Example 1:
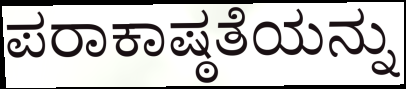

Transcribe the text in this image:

ಪರಾಕಾಷ್ಠತೆಯನ್ನು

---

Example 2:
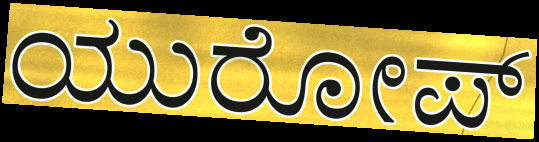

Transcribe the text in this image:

ಯುರೋಪ್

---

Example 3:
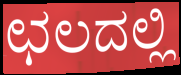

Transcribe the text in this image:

ಛಲದಲ್ಲಿ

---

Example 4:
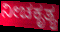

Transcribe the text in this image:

ನೀಚಕೃತ್ಯ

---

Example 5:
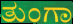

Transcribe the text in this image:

ತುಂಗಾ